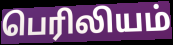
பெரிலியம்